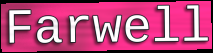
Farwell